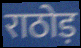
राठोड़